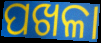
ପଖଳା